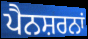
ਪੈਨਸ਼ਰਨਾਂ